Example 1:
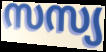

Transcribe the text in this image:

സസ്യ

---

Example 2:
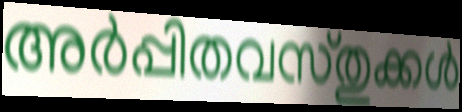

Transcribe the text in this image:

അർപ്പിതവസ്തുക്കൾ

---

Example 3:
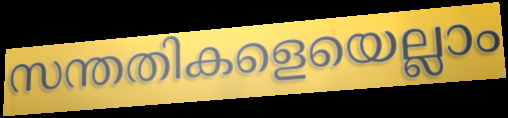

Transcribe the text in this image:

സന്തതികളെയെല്ലാം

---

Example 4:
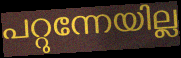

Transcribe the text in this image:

പറ്റുന്നേയില്ല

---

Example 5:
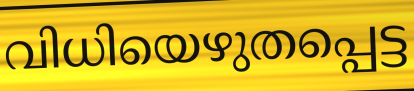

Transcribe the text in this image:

വിധിയെഴുതപ്പെട്ട